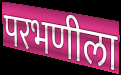
परभणीला